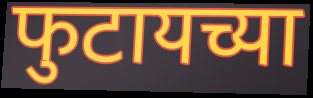
फुटायच्या